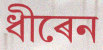
ধীৰেন